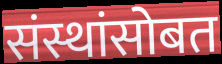
संस्थांसोबत